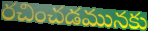
రచించడమునకు